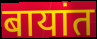
बायांत